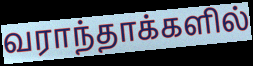
வராந்தாக்களில்